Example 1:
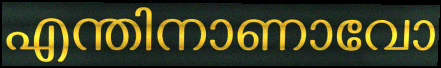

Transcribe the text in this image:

എന്തിനാണാവോ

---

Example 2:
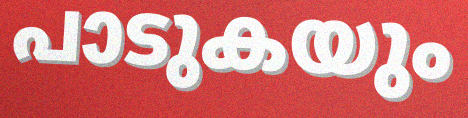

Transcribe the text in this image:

പാടുകയും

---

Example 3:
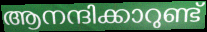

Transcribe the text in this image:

ആനന്ദിക്കാറുണ്ട്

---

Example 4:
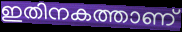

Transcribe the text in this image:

ഇതിനകത്താണ്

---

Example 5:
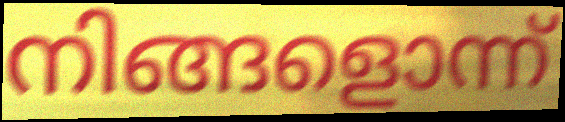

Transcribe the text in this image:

നിങ്ങളൊന്ന്